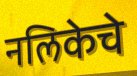
नलिकेचे